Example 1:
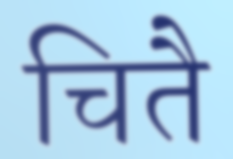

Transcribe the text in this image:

चितै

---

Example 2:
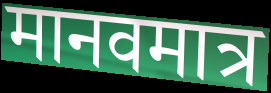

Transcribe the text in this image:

मानवमात्र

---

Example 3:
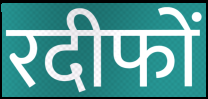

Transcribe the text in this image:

रदीफों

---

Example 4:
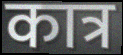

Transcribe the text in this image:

कात्र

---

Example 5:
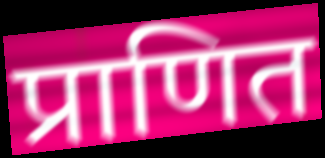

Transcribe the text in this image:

प्राणित